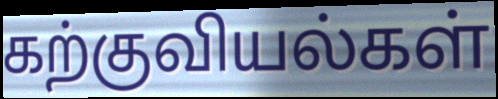
கற்குவியல்கள்